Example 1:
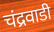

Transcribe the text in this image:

चंद्रवाडी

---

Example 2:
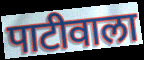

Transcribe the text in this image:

पाटीवाला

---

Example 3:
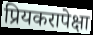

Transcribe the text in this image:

प्रियकरापेक्षा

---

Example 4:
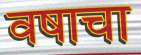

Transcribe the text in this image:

वषाचा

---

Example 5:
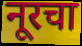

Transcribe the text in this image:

नूरचा